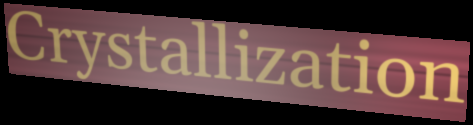
Crystallization